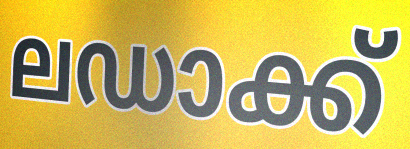
ലഡാക്ക്